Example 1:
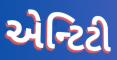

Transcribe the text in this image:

એન્ટિટી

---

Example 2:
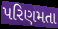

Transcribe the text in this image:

પરિણમતા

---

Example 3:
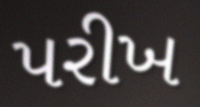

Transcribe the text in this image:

પરીખ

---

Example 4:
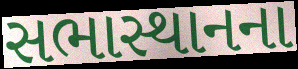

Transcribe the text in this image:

સભાસ્થાનના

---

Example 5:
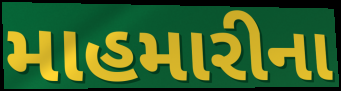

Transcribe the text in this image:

માહમારીના